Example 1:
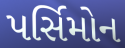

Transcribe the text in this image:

પર્સિમોન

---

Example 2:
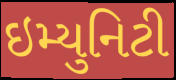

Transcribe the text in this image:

ઇમ્યુનિટી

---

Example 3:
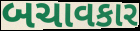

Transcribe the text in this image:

બચાવકાર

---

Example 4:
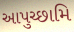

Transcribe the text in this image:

આપુચ્છામિ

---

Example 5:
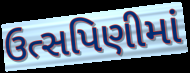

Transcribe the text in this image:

ઉત્સપિણીમાં